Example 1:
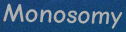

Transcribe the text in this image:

Monosomy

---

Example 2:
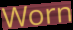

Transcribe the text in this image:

Worn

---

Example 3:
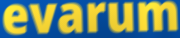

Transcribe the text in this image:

evarum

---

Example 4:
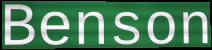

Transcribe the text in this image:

Benson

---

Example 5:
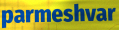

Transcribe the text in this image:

parmeshvar